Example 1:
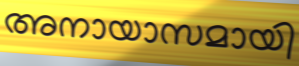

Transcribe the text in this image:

അനായാസമായി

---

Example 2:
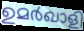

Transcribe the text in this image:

ഉമർഖാളി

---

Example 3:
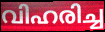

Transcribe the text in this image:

വിഹരിച്ച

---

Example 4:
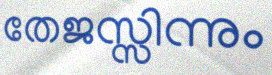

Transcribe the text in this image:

തേജസ്സിന്നും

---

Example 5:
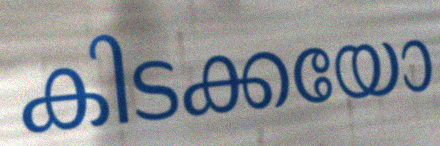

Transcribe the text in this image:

കിടക്കയോ